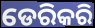
ଡେରିକରି